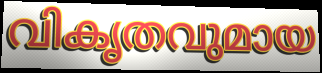
വികൃതവുമായ